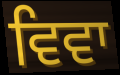
ਵਿਵਾ